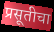
प्रसूतीचा